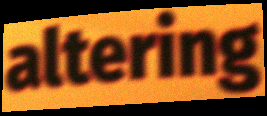
altering